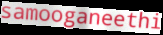
samooganeethi